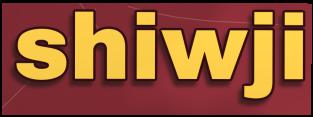
shiwji